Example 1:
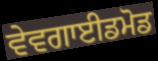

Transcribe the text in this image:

ਵੇਵਗਾਈਡਮੋਡ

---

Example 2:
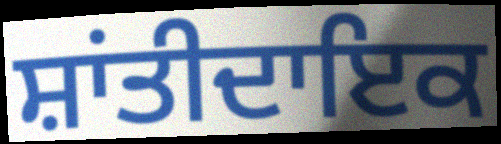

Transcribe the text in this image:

ਸ਼ਾਂਤੀਦਾਇਕ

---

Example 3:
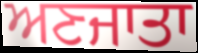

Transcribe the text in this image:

ਅਣਜਾਤਾ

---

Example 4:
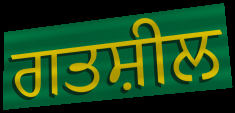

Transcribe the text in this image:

ਗਤਸ਼ੀਲ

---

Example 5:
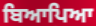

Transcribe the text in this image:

ਬਿਆਪਿਆ